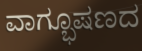
ವಾಗ್ಭೂಷಣದ